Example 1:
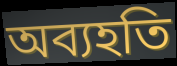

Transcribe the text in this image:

অব্যহতি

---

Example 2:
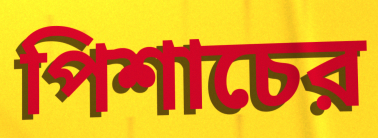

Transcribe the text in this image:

পিশাচের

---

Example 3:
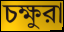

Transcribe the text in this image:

চক্ষুরা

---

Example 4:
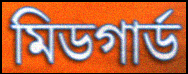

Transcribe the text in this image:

মিডগার্ড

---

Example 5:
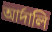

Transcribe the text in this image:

আর্দালি